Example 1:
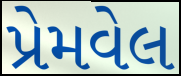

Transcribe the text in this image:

પ્રેમવેલ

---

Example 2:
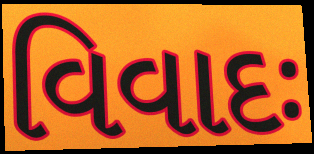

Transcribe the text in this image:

વિવાદઃ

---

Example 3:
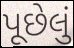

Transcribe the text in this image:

પૂછેલું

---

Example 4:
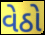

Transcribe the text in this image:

વેઠો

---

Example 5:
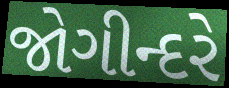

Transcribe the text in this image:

જોગીન્દરે